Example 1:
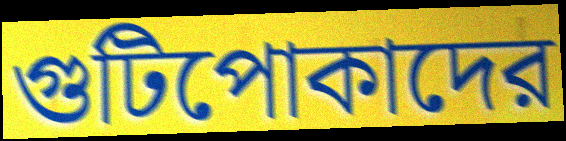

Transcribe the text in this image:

গুটিপোকাদের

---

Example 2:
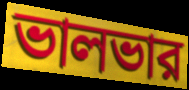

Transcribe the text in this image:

ভালভার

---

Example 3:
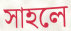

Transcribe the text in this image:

সাহলে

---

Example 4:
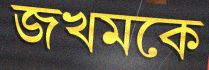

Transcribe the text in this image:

জখমকে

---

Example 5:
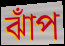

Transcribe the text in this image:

ঝাঁপ